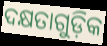
ଦକ୍ଷତାଗୁଡ଼ିକ